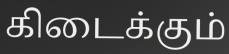
கிடைக்கும்